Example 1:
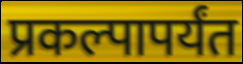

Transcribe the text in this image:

प्रकल्पापर्यंत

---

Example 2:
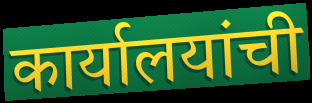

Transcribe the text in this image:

कार्यालयांची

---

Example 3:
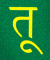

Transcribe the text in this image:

तू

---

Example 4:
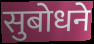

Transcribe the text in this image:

सुबोधने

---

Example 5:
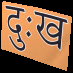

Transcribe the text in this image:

दुःख